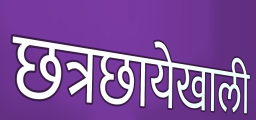
छत्रछायेखाली